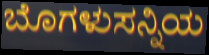
ಬೊಗಳುಸನ್ನಿಯ